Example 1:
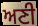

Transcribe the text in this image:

ਅਣੀ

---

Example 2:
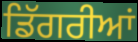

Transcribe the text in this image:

ਡਿੱਗਰੀਆਂ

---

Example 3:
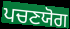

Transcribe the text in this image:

ਪਚਣਯੋਗ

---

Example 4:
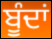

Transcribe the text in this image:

ਬੂੰਦਾਂ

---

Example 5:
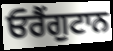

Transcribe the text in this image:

ਓਰੈਂਗੁਟਾਨ